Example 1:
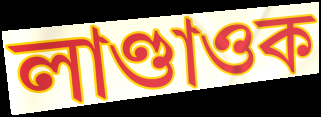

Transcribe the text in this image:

লাণ্ডাওক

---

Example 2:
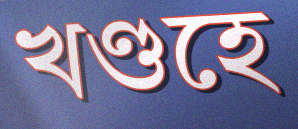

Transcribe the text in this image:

খণ্ডহে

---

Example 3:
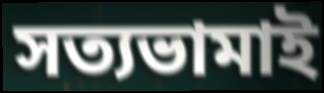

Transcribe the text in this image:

সত্যভামাই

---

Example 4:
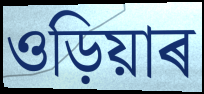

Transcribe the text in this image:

ওড়িয়াৰ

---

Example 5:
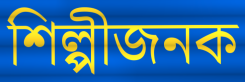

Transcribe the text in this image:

শিল্পীজনক